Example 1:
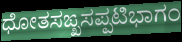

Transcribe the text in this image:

ಧೋತಸಙ್ಖಸಪ್ಪಟಿಭಾಗಂ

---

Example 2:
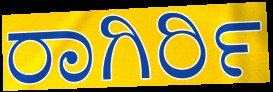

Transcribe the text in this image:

ರಾಗಿರ್ರಿ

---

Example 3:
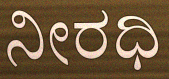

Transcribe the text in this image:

ನೀರಧಿ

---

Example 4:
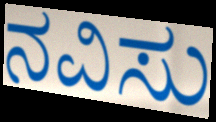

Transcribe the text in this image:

ನವಿಸು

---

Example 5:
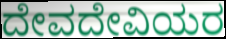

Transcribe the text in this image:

ದೇವದೇವಿಯರ